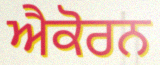
ਐਕੋਰਨ